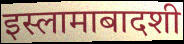
इस्लामाबादशी